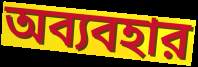
অব্যবহার